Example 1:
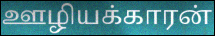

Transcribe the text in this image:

ஊழியக்காரன்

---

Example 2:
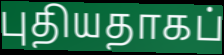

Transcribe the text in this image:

புதியதாகப்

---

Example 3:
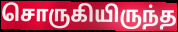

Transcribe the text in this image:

சொருகியிருந்த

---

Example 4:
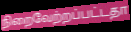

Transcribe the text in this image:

நிறைவேற்றப்பட்டதா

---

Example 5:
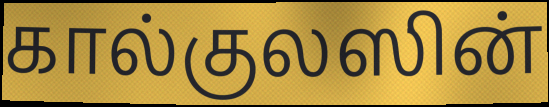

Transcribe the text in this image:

கால்குலஸின்